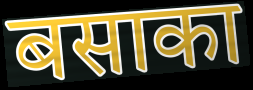
बसाका